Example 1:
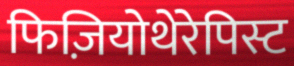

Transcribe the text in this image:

फिज़ियोथेरेपिस्ट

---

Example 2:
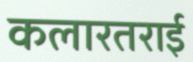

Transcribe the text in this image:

कलारतराई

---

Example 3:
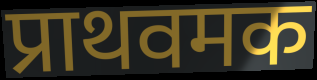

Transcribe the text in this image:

प्राथवमक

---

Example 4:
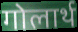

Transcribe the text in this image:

गोलार्थ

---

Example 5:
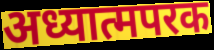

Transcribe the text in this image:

अध्यात्मपरक